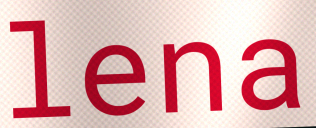
lena